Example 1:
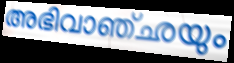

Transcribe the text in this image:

അഭിവാഞ്ഛയും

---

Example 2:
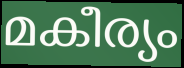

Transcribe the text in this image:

മകീര്യം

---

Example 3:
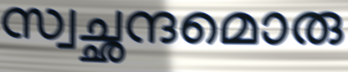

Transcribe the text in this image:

സ്വച്ഛന്ദമൊരു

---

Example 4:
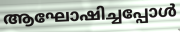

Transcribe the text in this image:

ആഘോഷിച്ചപ്പോൾ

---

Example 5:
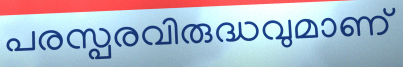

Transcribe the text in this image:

പരസ്പരവിരുദ്ധവുമാണ്